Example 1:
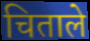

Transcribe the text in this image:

चिताले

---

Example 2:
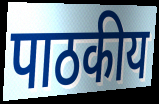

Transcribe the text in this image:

पाठकीय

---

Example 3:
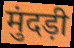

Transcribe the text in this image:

मुंदड़ी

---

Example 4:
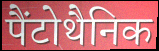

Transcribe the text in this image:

पैंटोथैनिक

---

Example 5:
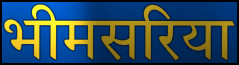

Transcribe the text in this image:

भीमसरिया